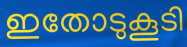
ഇതോടുകൂടി